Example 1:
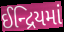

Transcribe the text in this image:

ઈન્દ્રિયમાં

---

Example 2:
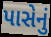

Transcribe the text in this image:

પાસેનું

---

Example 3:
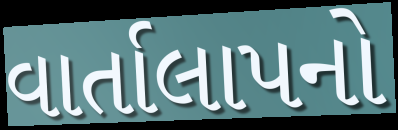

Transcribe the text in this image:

વાર્તાલાપનો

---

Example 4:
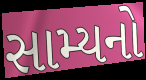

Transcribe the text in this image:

સામ્યનો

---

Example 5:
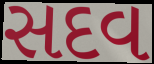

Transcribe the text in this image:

સદવ